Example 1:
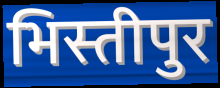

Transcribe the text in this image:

भिस्तीपुर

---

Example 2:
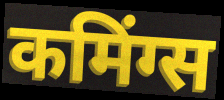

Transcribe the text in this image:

कमिंग्स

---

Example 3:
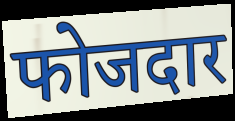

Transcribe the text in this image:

फोजदार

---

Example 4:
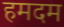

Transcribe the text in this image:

हमदम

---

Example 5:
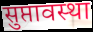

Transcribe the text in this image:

सुप्तावस्था